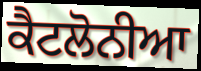
ਕੈਟਲੋਨੀਆ